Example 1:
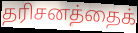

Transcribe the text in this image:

தரிசனத்தைக்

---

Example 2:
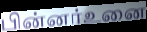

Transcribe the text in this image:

பின்னர்உனை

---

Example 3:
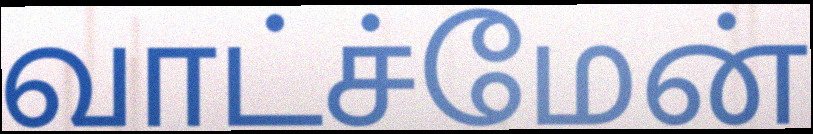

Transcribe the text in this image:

வாட்ச்மேன்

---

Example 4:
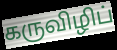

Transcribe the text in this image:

கருவிழிப்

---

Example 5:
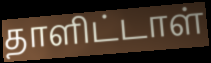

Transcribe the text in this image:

தாளிட்டாள்